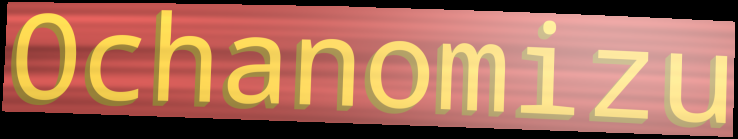
Ochanomizu